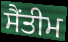
ਸੈਂਤੀਮ